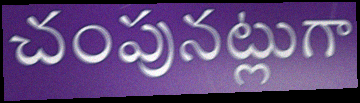
చంపునట్లుగా